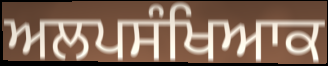
ਅਲਪਸੰਖਿਆਕ